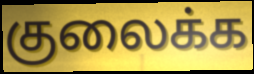
குலைக்க